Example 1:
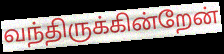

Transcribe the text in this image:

வந்திருக்கின்றேன்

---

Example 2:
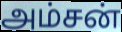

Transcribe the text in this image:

அம்சன்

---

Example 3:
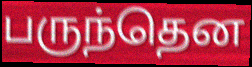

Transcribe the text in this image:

பருந்தென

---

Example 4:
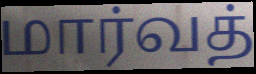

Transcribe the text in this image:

மார்வத்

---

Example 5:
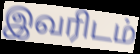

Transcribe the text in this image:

இவரிடம்